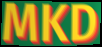
MKD